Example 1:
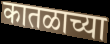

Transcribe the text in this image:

कातळाच्या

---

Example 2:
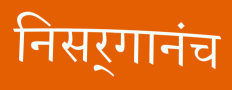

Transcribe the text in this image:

निसर्गानंच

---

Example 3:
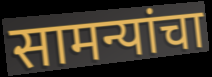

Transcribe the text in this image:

सामन्यांचा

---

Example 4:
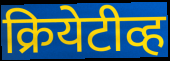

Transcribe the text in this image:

क्रियेटीव्ह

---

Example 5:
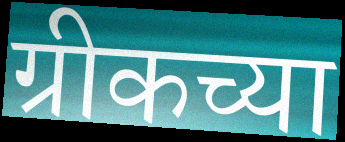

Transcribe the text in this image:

ग्रीकच्या